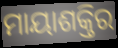
ମାୟାଶକ୍ତିର